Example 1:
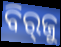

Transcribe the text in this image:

ବିର୍‌ଜୁ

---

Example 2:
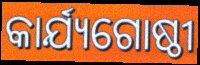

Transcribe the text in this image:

କାର୍ଯ୍ୟଗୋଷ୍ଠୀ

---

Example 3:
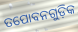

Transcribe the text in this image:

ତପୋବନଗୁଡ଼ିକ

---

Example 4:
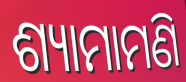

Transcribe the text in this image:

ଶ୍ୟାମାମଣି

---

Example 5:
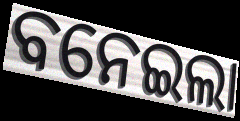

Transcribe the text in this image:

ବନେଇଲା